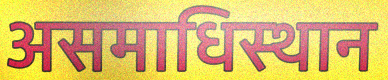
असमाधिस्थान